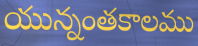
యున్నంతకాలము